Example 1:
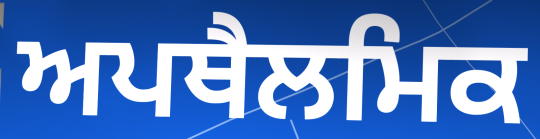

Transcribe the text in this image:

ਅਪਥੈਲਮਿਕ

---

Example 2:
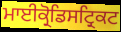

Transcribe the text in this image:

ਮਾਈਕ੍ਰੋਡਿਸਟ੍ਰਿਕਟ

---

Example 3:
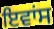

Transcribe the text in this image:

ਇਵਾਂਸ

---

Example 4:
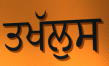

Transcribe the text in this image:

ਤਖੱਲੁਸ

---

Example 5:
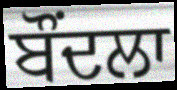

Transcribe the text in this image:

ਬੌਂਦਲਾ